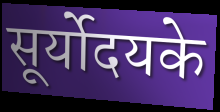
सूर्योदयके